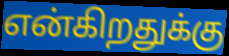
என்கிறதுக்கு